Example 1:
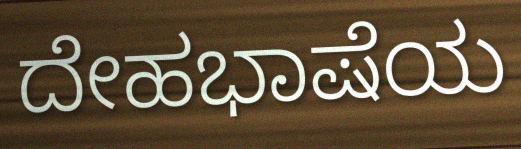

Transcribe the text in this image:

ದೇಹಭಾಷೆಯ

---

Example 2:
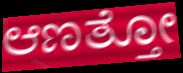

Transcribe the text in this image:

ಆಣತ್ತೋ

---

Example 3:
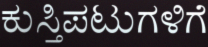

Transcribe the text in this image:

ಕುಸ್ತಿಪಟುಗಳಿಗೆ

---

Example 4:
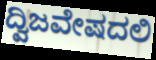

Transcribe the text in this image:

ದ್ವಿಜವೇಷದಲಿ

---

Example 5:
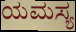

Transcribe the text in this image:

ಯಮಸ್ಯ